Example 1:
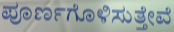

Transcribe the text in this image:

ಪೂರ್ಣಗೊಳಿಸುತ್ತೇವೆ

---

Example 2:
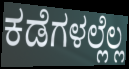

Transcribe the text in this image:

ಕಡೆಗಳಲ್ಲೆಲ್ಲ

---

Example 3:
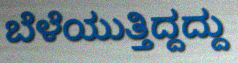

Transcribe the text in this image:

ಬೆಳೆಯುತ್ತಿದ್ದದ್ದು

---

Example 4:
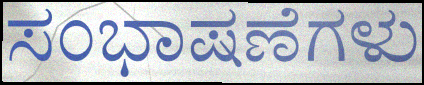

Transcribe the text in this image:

ಸಂಭಾಷಣೆಗಳು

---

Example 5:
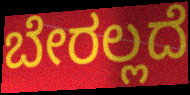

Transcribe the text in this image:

ಬೇರಲ್ಲದೆ